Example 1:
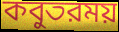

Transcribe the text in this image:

কবুতরময়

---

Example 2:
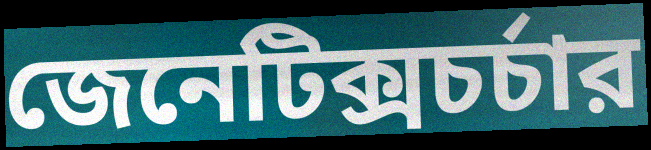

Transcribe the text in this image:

জেনেটিক্সচর্চার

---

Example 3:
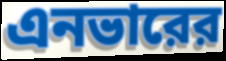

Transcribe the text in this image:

এনভারের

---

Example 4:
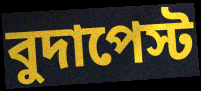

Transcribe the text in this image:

বুদাপেস্ট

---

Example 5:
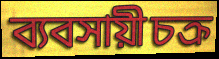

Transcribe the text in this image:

ব্যবসায়ীচক্র